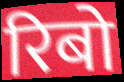
रिबो